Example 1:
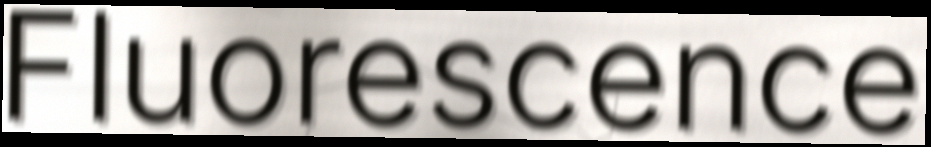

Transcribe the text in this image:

Fluorescence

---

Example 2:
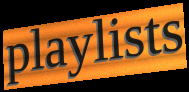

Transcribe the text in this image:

playlists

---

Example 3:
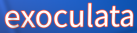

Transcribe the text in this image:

exoculata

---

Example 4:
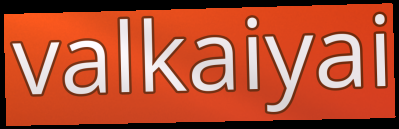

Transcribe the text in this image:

valkaiyai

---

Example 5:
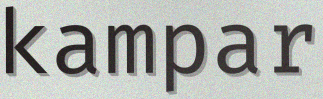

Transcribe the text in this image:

kampar